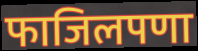
फाजिलपणा